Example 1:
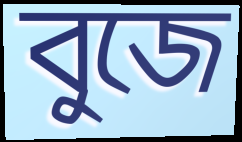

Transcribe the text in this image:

বুজে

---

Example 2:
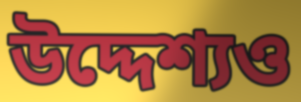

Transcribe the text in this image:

উদ্দেশ্যও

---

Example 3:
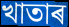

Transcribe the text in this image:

খাতাৰ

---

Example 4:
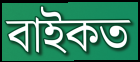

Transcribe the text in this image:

বাইকত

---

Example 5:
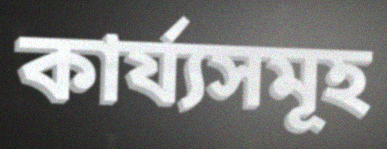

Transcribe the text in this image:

কাৰ্য্যসমূহ